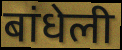
बांधेली